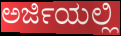
ಅರ್ಜಿಯಲ್ಲಿ